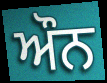
ਔਨ